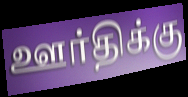
ஊர்திக்கு